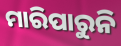
ମାରିପାରୁନି